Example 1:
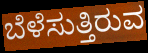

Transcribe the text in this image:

ಬೆಳೆಸುತ್ತಿರುವ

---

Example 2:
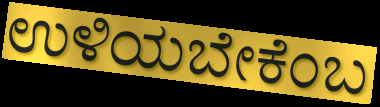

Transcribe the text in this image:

ಉಳಿಯಬೇಕೆಂಬ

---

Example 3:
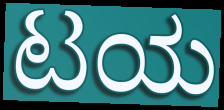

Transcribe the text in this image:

ಟಯ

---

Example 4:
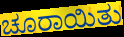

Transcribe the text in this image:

ಚೂರಾಯಿತು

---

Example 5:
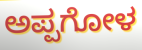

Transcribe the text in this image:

ಅಪ್ಪಗೋಳ